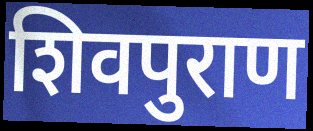
शिवपुराण